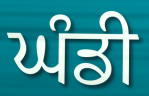
ਘੰਡੀ